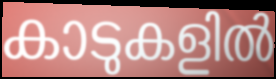
കാടുകളിൽ